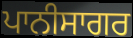
ਪਾਨੀਸਾਗਰ